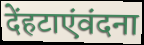
देंहटाएंवंदना